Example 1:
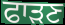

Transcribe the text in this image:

ਫਾੜਣ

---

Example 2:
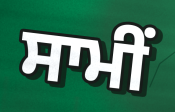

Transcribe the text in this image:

ਸਾਮੀਂ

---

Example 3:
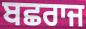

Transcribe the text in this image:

ਬਛਰਾਜ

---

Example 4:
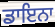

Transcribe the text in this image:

ਡਾਇਨਾ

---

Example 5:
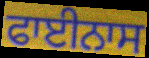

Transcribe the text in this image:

ਫਾਈਨਾਸ